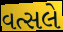
વત્સલે